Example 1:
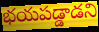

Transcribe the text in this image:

భయపడ్డాడని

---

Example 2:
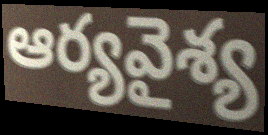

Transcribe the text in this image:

ఆర్యవైశ్య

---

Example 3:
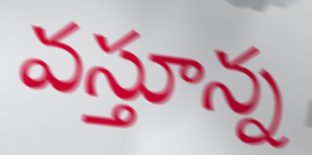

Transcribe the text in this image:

వస్తూన్న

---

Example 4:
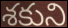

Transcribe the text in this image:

శకుని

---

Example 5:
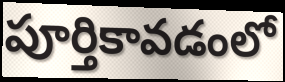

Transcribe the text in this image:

పూర్తికావడంలో